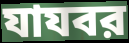
যাযবর